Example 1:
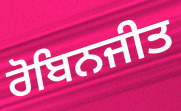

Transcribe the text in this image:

ਰੋਬਿਨਜੀਤ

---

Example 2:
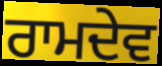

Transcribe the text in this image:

ਰਾਮਦੇਵ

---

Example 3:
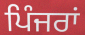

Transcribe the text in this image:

ਪਿੰਜਰਾਂ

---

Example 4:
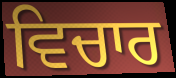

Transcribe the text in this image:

ਵਿਚਾਰ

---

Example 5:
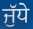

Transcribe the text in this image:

ਜੁੱਧੇ